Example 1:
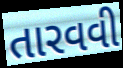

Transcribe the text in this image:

તારવવી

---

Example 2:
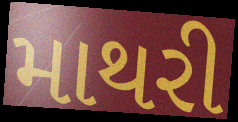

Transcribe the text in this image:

માથરી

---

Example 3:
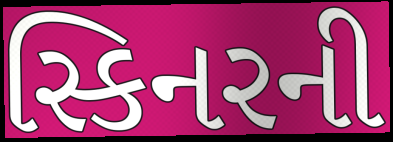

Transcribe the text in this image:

સ્કિનરની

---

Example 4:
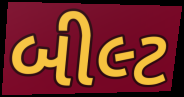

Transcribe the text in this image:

બીલ્ટ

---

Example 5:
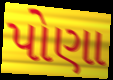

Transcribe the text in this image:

પોણા